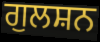
ਗੁਲਸ਼ਨ